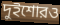
দুইশোরও